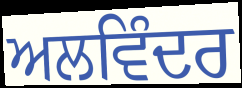
ਅਲਵਿੰਦਰ